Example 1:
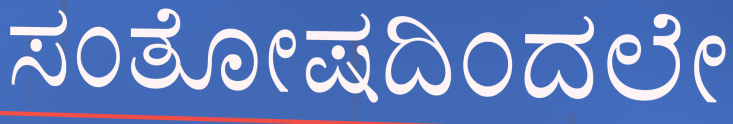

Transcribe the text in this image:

ಸಂತೋಷದಿಂದಲೇ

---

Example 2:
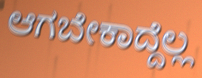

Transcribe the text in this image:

ಆಗಬೇಕಾದ್ದೆಲ್ಲ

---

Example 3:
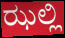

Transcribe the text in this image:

ಝಲ್ಲಿ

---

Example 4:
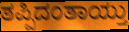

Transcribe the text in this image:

ತಪ್ಪಿದಂತಾಯ್ತು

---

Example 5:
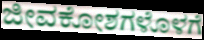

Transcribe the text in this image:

ಜೀವಕೋಶಗಳೊಳಗೆ